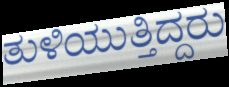
ತುಳಿಯುತ್ತಿದ್ದರು